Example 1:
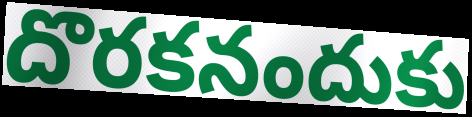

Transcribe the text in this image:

దొరకనందుకు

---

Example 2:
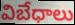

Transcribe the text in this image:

విబేధాలు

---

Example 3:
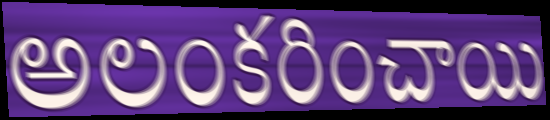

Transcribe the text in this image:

అలంకరించాయి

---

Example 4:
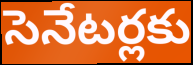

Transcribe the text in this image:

సెనేటర్లకు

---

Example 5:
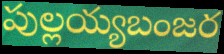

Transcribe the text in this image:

పుల్లయ్యబంజర